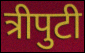
त्रीपुटी